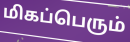
மிகப்பெரும்